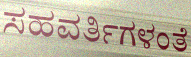
ಸಹವರ್ತಿಗಳಂತೆ